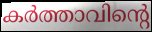
കർത്താവിന്റെ